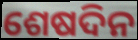
ଶେଷଦିନ